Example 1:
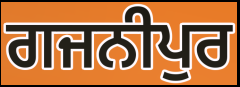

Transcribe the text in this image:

ਗਜਨੀਪੁਰ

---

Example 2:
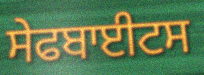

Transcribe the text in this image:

ਸੇਫਬਾਈਟਸ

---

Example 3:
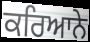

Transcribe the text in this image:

ਕਰਿਆਨੇ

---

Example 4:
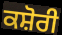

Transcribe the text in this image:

ਕਸ਼ੋਰੀ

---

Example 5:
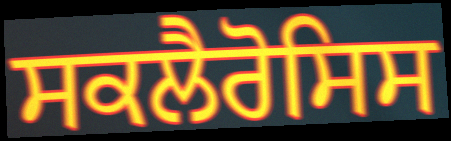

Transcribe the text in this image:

ਸਕਲੈਰੋਸਿਸ